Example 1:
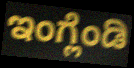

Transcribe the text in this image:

ಇಂಗ್ಲೆಂಡಿ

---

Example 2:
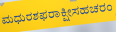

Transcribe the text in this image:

ಮಧುರಶಫರಾಕ್ಷೀಸಹಚರಂ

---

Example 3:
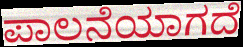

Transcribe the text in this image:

ಪಾಲನೆಯಾಗದೆ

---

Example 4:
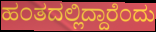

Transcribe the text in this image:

ಹಂತದಲ್ಲಿದ್ದಾರೆಂದು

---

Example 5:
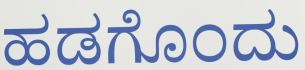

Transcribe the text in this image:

ಹಡಗೊಂದು